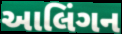
આલિંગન